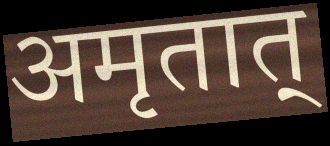
अमृतात्